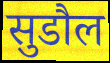
सुडौल